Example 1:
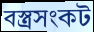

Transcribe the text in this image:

বস্ত্রসংকট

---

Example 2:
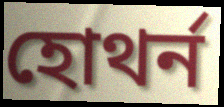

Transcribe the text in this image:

হোথর্ন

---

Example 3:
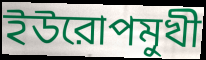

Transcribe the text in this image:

ইউরোপমুখী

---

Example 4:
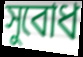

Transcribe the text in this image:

সুবোধ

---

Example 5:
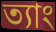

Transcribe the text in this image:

ত্যাং